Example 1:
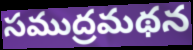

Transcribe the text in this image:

సముద్రమథన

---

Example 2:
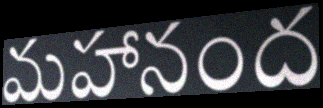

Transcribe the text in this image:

మహానంద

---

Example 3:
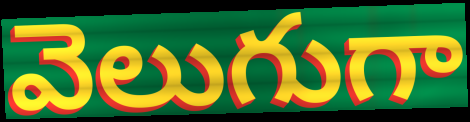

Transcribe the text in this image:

వెలుగుగా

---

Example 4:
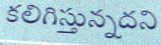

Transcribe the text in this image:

కలిగిస్తున్నదని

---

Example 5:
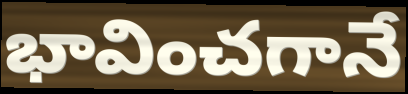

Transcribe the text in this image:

భావించగానే